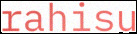
rahisu